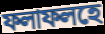
ফলাফলহে